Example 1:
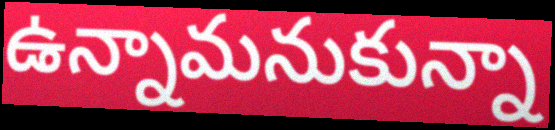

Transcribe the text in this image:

ఉన్నామనుకున్నా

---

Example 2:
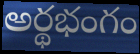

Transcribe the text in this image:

అర్థభంగం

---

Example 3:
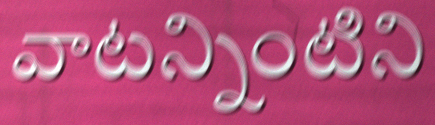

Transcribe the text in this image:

వాటన్నింటిని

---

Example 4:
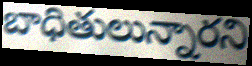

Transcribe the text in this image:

బాధితులున్నారని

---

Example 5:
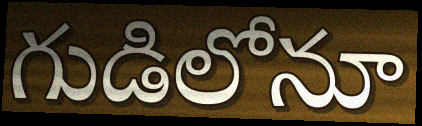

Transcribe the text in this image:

గుడిలోనూ